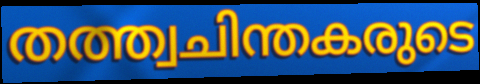
തത്ത്വചിന്തകരുടെ